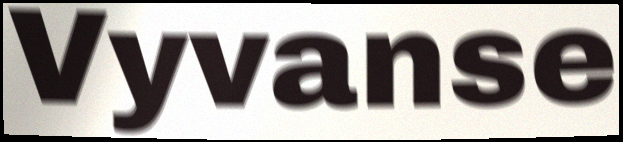
Vyvanse